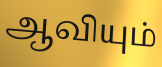
ஆவியும்